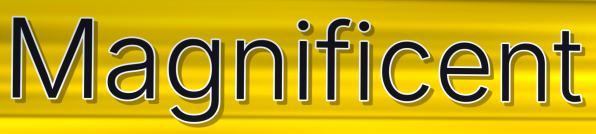
Magnificent